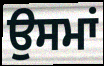
ਉਸਮਾਂ